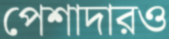
পেশাদারও